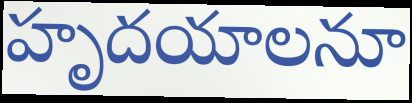
హృదయాలనూ